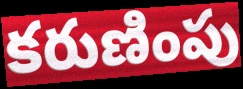
కరుణింపు